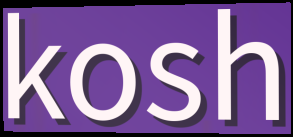
kosh